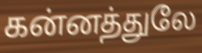
கன்னத்துலே